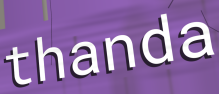
thanda